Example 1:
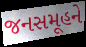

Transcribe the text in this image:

જનસમૂહને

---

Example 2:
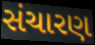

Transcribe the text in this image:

સંચારણ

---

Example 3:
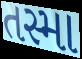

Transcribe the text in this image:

તસ્મા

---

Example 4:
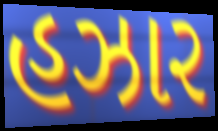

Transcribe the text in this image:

હઝાર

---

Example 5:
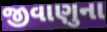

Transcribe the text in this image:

જીવાણુના